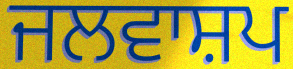
ਜਲਵਾਸ਼ਪ